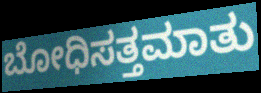
ಬೋಧಿಸತ್ತಮಾತು